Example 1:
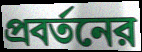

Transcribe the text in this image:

প্রবর্তনের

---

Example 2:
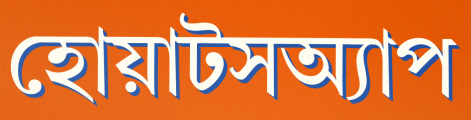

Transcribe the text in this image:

হোয়াটসঅ্যাপ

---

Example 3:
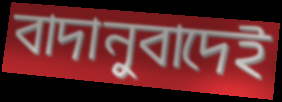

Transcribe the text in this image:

বাদানুবাদেই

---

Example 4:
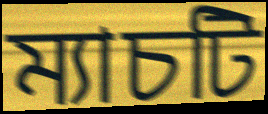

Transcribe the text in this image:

ম্যাচটি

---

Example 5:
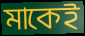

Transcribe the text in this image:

মাকেই